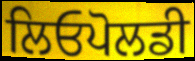
ਲਿਓਪੋਲਡੀ